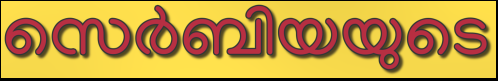
സെർബിയയുടെ